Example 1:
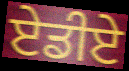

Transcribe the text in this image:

ਏਡੀਏ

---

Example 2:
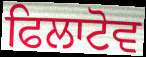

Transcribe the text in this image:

ਫਿਲਾਟੋਵ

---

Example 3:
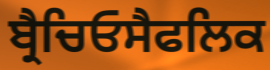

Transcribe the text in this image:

ਬ੍ਰੈਚਿਓਸੈਫਲਿਕ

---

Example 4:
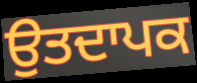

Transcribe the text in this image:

ਉਤਦਾਪਕ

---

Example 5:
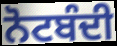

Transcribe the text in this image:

ਨੋਟਬੰਦੀ